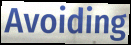
Avoiding